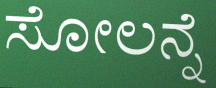
ಸೋಲನ್ನೆ